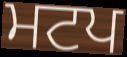
ਮਟਪ